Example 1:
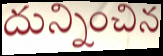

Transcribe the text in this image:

దున్నించిన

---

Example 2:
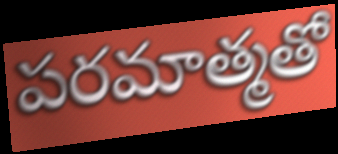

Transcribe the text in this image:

పరమాత్మతో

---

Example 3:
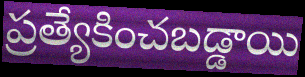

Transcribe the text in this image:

ప్రత్యేకించబడ్డాయి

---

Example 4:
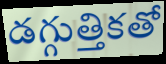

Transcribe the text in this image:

డగ్గుత్తికతో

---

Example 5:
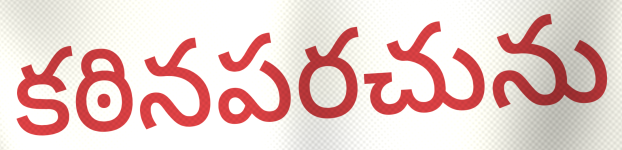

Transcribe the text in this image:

కఠినపరచును